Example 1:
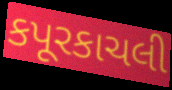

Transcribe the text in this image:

કપૂરકાચલી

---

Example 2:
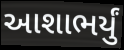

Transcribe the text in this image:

આશાભર્યું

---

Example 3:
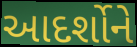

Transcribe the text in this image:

આદર્શોને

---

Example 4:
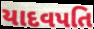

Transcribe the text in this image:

યાદવપતિ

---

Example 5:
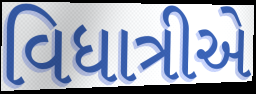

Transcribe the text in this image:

વિધાત્રીએ